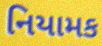
નિયામક